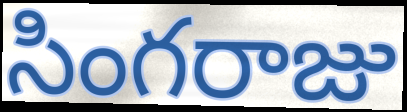
సింగరాజు